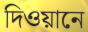
দিওয়ানে